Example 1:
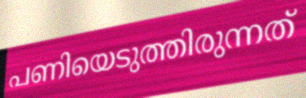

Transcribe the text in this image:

പണിയെടുത്തിരുന്നത്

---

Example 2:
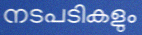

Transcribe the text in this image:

നടപടികളും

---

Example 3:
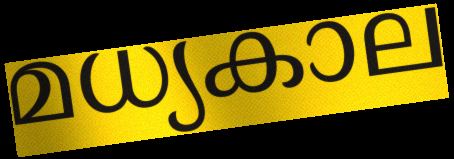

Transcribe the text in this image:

മധ്യകാല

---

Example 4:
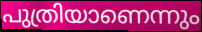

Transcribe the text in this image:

പുത്രിയാണെന്നും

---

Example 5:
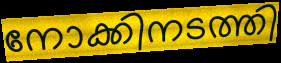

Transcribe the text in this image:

നോക്കിനടത്തി